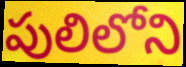
పులిలోని